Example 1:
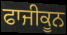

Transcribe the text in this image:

ਫਾਜੀਕੂਨ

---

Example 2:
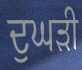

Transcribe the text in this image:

ਦੁਘੜੀ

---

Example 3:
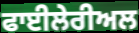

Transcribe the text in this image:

ਫਾਈਲੇਰੀਅਲ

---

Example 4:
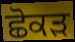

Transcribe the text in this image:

ਛੋਕੜ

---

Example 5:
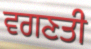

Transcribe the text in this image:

ਵਗਣਤੀ